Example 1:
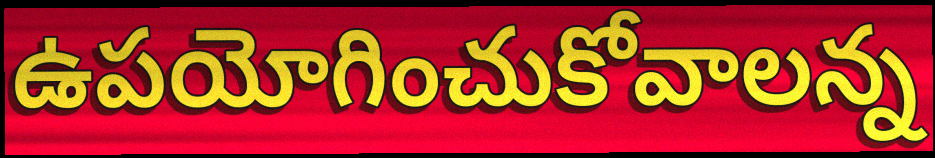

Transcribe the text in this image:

ఉపయోగించుకోవాలన్న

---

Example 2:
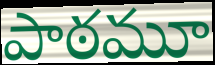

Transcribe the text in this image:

పాఠమూ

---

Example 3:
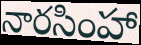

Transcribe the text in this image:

నారసింహా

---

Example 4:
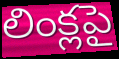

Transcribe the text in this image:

లింక్లపై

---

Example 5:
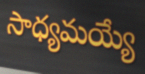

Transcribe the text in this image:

సాధ్యమయ్యే